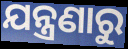
ଯନ୍ତ୍ରଣାରୁ